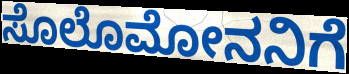
ಸೊಲೊಮೋನನಿಗೆ